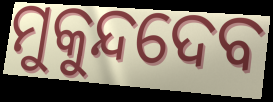
ମୁକୁନ୍ଦଦେବ